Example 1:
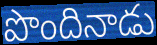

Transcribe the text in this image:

పొందినాడు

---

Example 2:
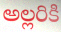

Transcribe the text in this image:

అల్లరికి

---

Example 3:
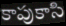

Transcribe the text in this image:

కాపుకాసి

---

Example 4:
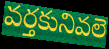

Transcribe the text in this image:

వర్తకునివలె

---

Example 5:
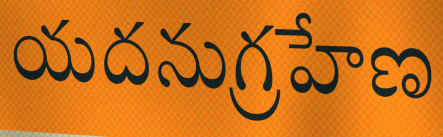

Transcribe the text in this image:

యదనుగ్రహేణ